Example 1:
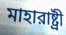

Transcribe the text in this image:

মাহারাষ্ট্রী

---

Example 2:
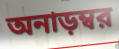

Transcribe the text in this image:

অনাড়ম্বর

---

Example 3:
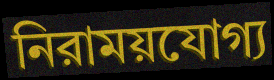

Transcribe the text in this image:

নিরাময়যোগ্য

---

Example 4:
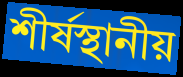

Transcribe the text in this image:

শীর্ষস্থানীয়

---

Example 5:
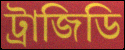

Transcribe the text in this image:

ট্রাজিডি